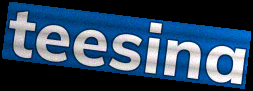
teesina